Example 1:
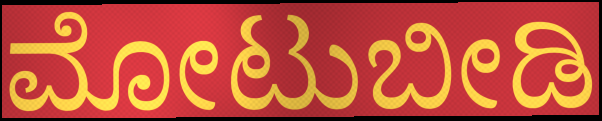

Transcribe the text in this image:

ಮೋಟುಬೀಡಿ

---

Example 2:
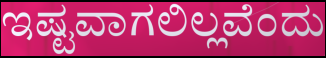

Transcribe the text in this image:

ಇಷ್ಟವಾಗಲಿಲ್ಲವೆಂದು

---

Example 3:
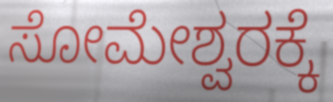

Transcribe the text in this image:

ಸೋಮೇಶ್ವರಕ್ಕೆ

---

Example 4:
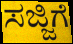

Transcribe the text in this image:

ಸಜ್ಜಿಗೆ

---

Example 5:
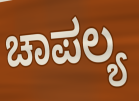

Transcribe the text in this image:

ಚಾಪಲ್ಯ